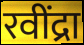
रवींद्रा